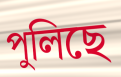
পুলিছে